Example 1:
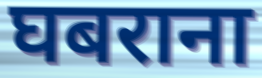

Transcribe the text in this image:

घबराना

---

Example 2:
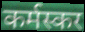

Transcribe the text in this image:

कर्मस्कर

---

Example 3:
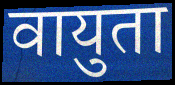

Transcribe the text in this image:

वायुता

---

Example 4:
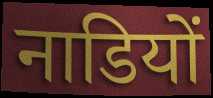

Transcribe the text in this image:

नाडियों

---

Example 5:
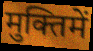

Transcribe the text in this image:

मुक्तिमें